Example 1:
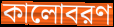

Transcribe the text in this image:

কালোবরণ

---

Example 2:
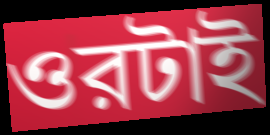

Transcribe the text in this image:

ওরটাই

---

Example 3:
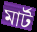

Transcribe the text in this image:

মার্ট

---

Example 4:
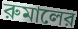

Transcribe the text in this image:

রুমালের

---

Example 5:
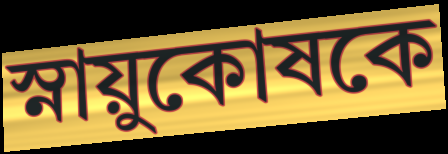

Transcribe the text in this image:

স্নায়ুকোষকে